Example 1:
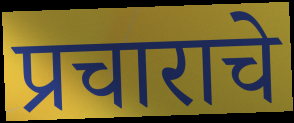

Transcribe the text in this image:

प्रचाराचे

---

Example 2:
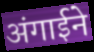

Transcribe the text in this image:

अंगाईने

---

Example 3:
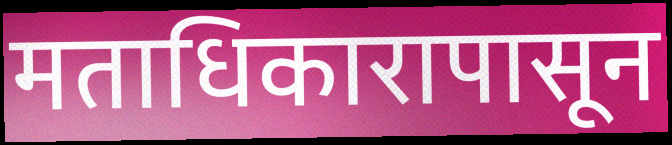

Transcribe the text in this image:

मताधिकारापासून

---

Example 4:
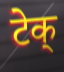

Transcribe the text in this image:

टेक्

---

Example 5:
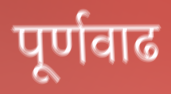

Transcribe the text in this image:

पूर्णवाढ